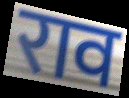
राव